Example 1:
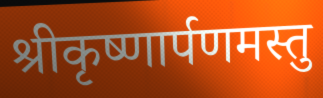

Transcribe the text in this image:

श्रीकृष्णार्पणमस्तु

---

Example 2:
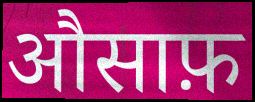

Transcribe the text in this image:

औसाफ़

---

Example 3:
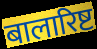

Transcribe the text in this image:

बालारिष्ट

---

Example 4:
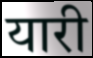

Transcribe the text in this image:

यारी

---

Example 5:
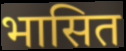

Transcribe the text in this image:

भासित